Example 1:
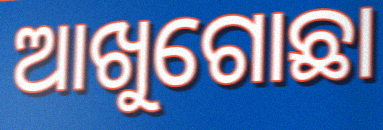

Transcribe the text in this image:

ଆଖୁଗୋଛା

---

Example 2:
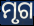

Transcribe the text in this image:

ମୃଗ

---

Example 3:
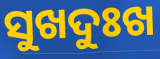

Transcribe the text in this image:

ସୁଖଦୁଃଖ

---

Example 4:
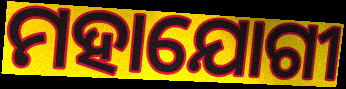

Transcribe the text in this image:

ମହାଯୋଗୀ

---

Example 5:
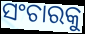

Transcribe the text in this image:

ସଂଚାରକୁ